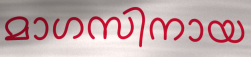
മാഗസിനായ